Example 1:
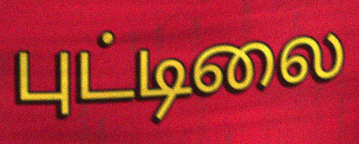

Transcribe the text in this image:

புட்டிலை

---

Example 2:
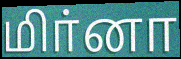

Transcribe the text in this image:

மிர்னா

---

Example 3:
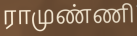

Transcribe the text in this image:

ராமுண்ணி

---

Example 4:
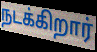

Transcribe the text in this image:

நடக்கிறார்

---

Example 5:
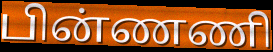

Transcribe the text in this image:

பின்ணணி